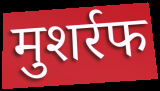
मुशर्रफ